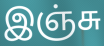
இஞ்சு